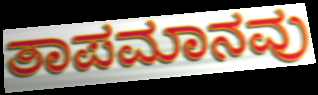
ತಾಪಮಾನವು